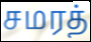
சமரத்